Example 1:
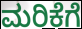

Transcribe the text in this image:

ಮರಿಕೆಗೆ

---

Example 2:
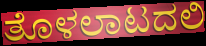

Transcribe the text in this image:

ತೊಳಲಾಟದಲಿ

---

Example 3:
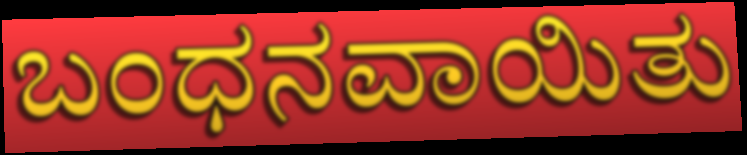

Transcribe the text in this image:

ಬಂಧನವಾಯಿತು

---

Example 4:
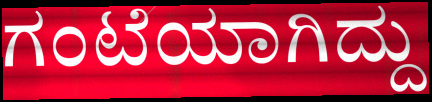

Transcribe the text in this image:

ಗಂಟೆಯಾಗಿದ್ದು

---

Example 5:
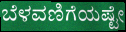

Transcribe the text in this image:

ಬೆಳವಣಿಗೆಯಷ್ಟೇ